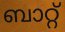
ബാറ്റ്